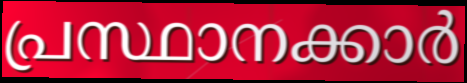
പ്രസ്ഥാനക്കാർ